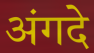
अंगदे